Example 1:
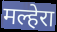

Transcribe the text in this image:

मल्हेरा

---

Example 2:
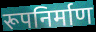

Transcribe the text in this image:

रूपनिर्माण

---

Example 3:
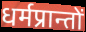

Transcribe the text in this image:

धर्मप्रान्तों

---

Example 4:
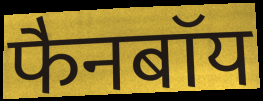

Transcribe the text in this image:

फैनबॉय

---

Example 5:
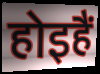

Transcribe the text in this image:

होइहैं